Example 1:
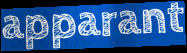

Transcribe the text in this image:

apparant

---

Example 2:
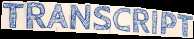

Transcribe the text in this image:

TRANSCRIPT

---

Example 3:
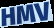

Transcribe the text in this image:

HMV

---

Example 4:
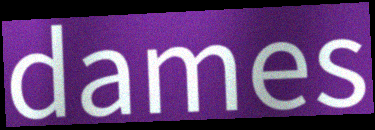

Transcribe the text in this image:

dames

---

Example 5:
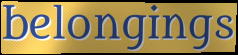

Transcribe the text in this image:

belongings